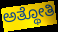
ಅತ್ಥೋತಿ